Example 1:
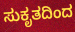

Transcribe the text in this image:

ಸುಕೃತದಿಂದ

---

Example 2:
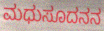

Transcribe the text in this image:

ಮಧುಸೂದನನ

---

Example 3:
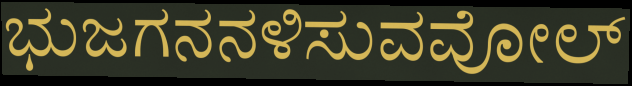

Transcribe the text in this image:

ಭುಜಗನನಳಿಸುವವೋಲ್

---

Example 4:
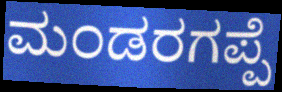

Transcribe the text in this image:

ಮಂಡರಗಪ್ಪೆ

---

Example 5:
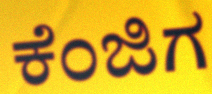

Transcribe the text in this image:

ಕೆಂಜಿಗ